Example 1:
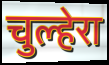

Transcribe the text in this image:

चुल्हेरा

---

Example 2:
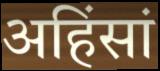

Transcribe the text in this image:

अहिंसां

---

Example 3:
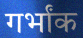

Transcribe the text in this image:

गर्भांक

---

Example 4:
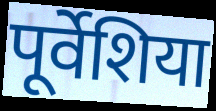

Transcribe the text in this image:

पूर्वेशिया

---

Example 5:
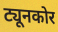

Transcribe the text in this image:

ट्यूनकोर